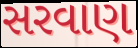
સરવાણ